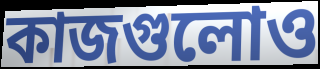
কাজগুলোও